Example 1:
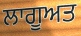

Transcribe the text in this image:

ਲਾਗੂਅਤ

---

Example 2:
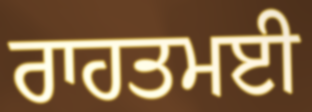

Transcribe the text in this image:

ਰਾਹਤਮਈ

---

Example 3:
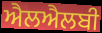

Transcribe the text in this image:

ਐਲਐਲਬੀ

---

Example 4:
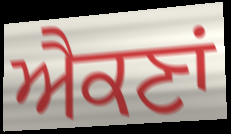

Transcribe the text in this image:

ਐਕਣਾਂ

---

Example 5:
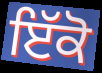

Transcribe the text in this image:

ਇੱਕੋ